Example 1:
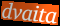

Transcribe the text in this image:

dvaita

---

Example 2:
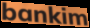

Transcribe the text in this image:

bankim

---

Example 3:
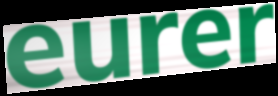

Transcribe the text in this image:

eurer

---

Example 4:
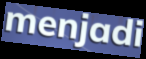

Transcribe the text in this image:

menjadi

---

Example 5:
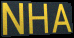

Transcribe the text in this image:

NHA